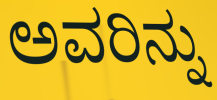
ಅವರಿನ್ನು